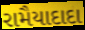
રામૈયાદાદા